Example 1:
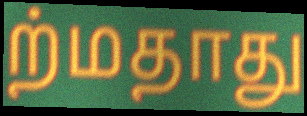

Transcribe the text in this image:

ற்மதாது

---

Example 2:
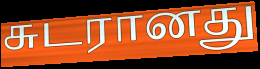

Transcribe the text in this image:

சுடரானது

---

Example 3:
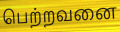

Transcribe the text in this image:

பெற்றவனை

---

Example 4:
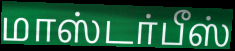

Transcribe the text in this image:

மாஸ்டர்பீஸ்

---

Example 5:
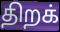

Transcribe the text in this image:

திறக்